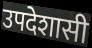
उपदेशासी